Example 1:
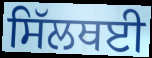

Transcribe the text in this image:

ਸਿੱਲਥਈ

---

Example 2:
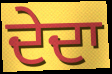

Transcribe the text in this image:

ਦੇਦਾ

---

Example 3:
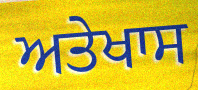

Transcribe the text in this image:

ਅਤੇਖਾਸ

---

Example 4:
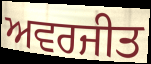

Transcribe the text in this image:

ਅਵਰਜੀਤ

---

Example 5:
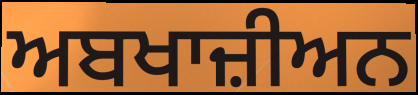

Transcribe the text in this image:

ਅਬਖਾਜ਼ੀਅਨ